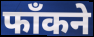
फाँकने